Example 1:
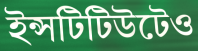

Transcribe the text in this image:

ইন্সটিটিউটেও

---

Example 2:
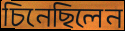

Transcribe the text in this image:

চিনেছিলেন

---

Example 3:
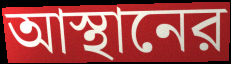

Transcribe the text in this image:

আস্থানের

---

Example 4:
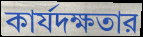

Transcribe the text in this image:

কার্যদক্ষতার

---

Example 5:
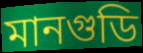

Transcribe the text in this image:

মানগুডি